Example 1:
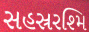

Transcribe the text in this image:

સહસ્રરશ્મિ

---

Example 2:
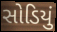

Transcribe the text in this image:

સોડિયું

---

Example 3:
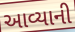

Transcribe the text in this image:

આવ્યાની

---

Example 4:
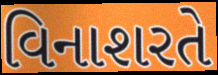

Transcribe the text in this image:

વિનાશરતે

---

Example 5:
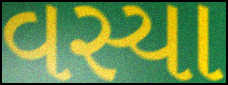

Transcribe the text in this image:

વસ્યા